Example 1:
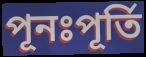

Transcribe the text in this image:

পূনঃপূৰ্তি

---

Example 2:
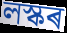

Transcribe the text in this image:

লস্কৰ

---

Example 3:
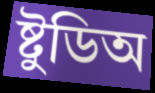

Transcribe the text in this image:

ষ্টুডিঅ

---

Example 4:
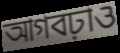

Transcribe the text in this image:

আগবঢ়াও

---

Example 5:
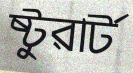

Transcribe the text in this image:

ষ্টুৱাৰ্ট